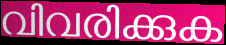
വിവരിക്കുക